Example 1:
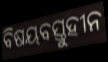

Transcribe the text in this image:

ବିଷୟବସ୍ତୁହୀନ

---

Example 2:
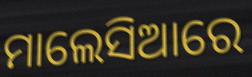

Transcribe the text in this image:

ମାଲେସିଆରେ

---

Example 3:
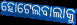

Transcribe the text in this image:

ହୋଟେଲବାଲାକୁ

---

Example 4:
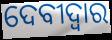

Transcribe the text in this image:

ଦେବୀଦ୍ବାର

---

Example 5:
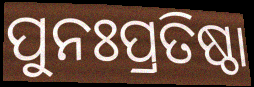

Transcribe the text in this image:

ପୁନଃପ୍ରତିଷ୍ଠା